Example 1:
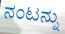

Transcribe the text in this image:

ನಂಟನ್ನು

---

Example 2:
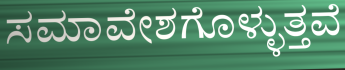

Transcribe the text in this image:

ಸಮಾವೇಶಗೊಳ್ಳುತ್ತವೆ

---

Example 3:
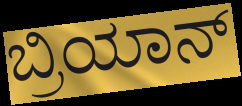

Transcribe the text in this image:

ಬ್ರಿಯಾನ್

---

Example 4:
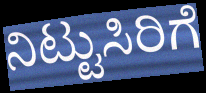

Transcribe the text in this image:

ನಿಟ್ಟುಸಿರಿಗೆ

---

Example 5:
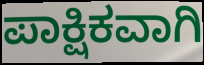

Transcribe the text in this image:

ಪಾಕ್ಷಿಕವಾಗಿ